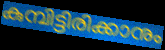
കുമ്പിട്ടിരിക്കാനും